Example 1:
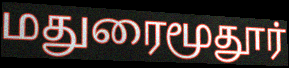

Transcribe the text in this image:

மதுரைமூதூர்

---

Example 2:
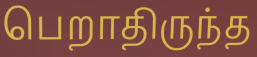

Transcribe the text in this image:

பெறாதிருந்த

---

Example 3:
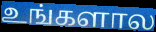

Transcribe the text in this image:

உங்களால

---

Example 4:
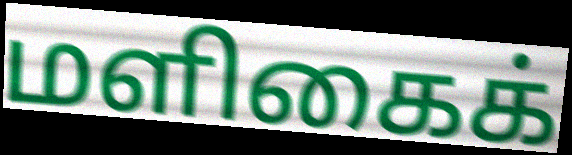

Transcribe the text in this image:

மளிகைக்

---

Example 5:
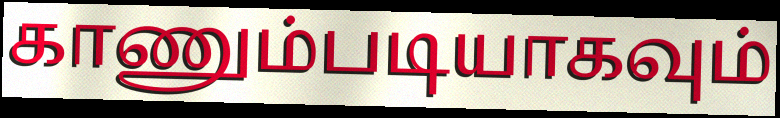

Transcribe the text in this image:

காணும்படியாகவும்